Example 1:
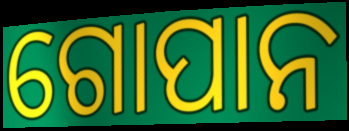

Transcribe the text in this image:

ଗୋପାନ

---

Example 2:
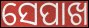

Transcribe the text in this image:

ସେପାଖ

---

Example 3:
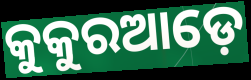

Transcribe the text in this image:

କୁକୁରଆଡ଼େ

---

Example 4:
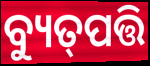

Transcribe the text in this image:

ବ୍ୟୁତ୍‌ପତ୍ତି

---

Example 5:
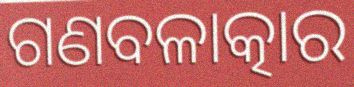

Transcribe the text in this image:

ଗଣବଳାତ୍କାର